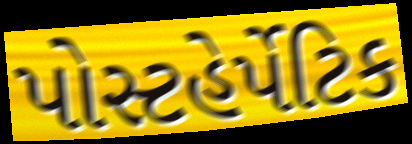
પોસ્ટહેર્પેટિક